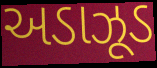
અડાઝૂડ